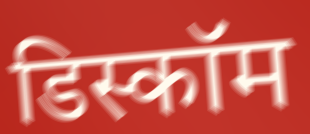
डिस्कॉम